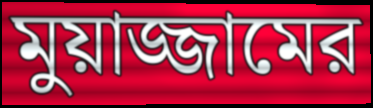
মুয়াজ্জামের